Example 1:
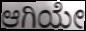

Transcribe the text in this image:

ಆಗಿಯೇ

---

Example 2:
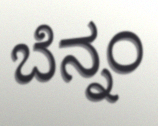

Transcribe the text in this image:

ಬೆನ್ನಂ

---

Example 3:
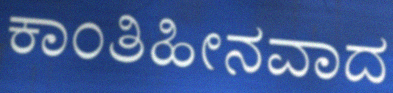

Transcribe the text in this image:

ಕಾಂತಿಹೀನವಾದ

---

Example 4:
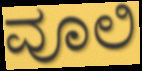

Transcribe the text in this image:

ವೂಲಿ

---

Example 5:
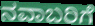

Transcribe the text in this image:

ನವಾಬರಿಗೆ